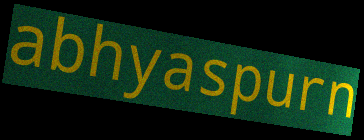
abhyaspurn